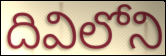
దివిలోని